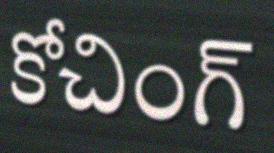
కోచింగ్